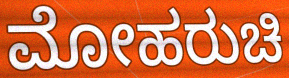
ಮೋಹರುಚಿ